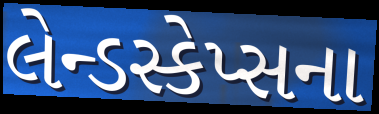
લેન્ડસ્કેપ્સના